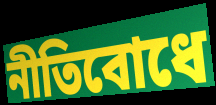
নীতিবোধে